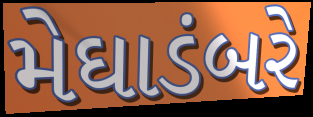
મેઘાડંબરે